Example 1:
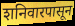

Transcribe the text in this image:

शनिवारपासून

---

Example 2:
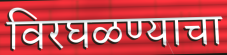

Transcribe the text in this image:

विरघळण्याचा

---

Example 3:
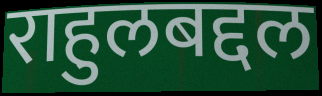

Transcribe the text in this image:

राहुलबद्दल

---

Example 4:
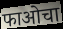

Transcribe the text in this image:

फाओचा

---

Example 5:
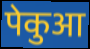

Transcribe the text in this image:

पेकुआ